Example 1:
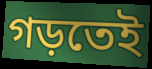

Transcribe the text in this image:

গড়তেই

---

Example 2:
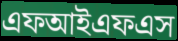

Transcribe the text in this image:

এফআইএফএস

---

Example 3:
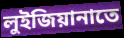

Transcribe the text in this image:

লুইজিয়ানাতে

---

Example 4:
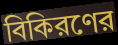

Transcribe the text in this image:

বিকিরণের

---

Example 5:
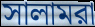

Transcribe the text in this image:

সালামরা